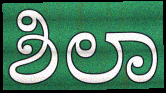
ಶಿಲಾ